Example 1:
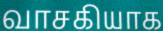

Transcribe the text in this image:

வாசகியாக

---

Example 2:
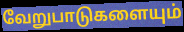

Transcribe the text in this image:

வேறுபாடுகளையும்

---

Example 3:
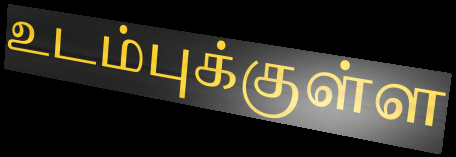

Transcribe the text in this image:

உடம்புக்குள்ள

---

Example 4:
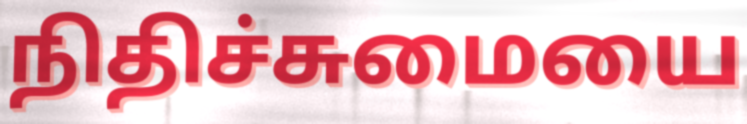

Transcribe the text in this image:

நிதிச்சுமையை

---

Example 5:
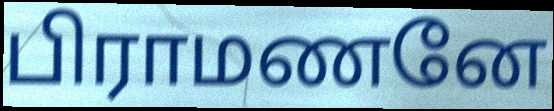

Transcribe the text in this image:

பிராமணனே